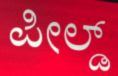
ಪೀಲ್ಡ್